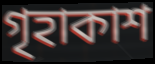
গৃহাকাশ